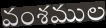
వంశముల